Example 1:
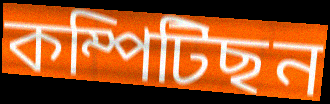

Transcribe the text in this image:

কম্পিটিছন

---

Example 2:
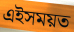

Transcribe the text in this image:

এইসময়ত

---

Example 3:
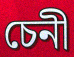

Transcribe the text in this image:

চেনী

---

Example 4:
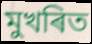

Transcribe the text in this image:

মুখৰিত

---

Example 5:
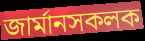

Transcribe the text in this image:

জাৰ্মানসকলক